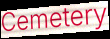
Cemetery